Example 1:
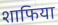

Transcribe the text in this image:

शाफिया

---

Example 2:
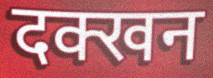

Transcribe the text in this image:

दक्खन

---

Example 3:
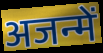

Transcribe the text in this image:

अजन्में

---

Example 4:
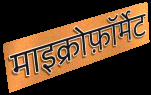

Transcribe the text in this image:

माइक्रोफ़ॉर्मेट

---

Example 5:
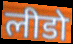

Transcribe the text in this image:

लीडो